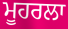
ਮੂਹਰਲਾ